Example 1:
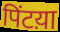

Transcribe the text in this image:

पिंटय़ा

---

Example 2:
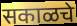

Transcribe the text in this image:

सकाळचे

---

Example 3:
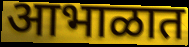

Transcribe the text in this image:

आभाळात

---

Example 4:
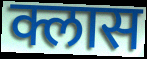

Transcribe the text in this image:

क्लास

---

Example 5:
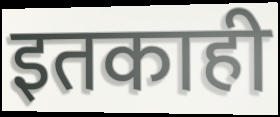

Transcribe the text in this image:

इतकाही